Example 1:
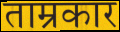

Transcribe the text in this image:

ताम्रकार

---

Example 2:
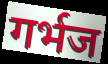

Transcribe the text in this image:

गर्भज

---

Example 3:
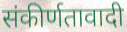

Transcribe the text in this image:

संकीर्णतावादी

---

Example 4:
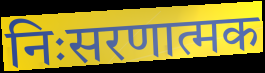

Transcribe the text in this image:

निःसरणात्मक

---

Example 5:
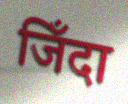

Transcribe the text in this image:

जिँदा